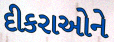
દીકરાઓને